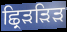
ਛ੍ਰਿੜੜਿੜ